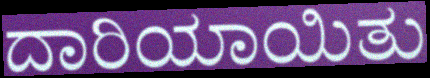
ದಾರಿಯಾಯಿತು